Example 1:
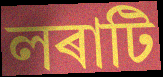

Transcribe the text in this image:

লৰাটি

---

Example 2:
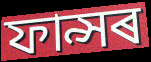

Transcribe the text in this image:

ফান্সৰ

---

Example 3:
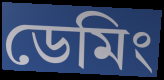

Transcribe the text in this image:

ডেমিং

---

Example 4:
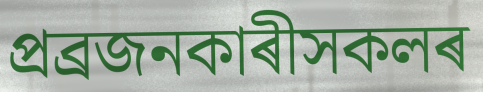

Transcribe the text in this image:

প্ৰব্ৰজনকাৰীসকলৰ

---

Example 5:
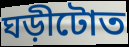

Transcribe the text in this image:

ঘড়ীটোত